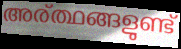
അര്ത്ഥങ്ങളുണ്ട്